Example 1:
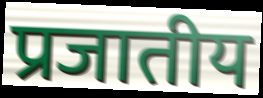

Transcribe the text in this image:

प्रजातीय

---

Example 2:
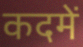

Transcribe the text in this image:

कदमें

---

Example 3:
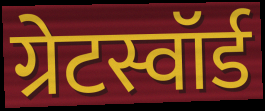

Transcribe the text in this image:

ग्रेटस्वॉर्ड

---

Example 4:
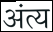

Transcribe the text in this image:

अंत्य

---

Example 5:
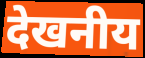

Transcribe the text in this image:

देखनीय